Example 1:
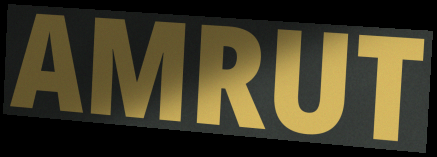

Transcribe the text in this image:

AMRUT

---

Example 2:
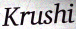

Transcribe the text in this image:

Krushi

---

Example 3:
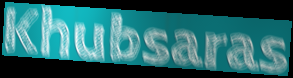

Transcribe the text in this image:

Khubsaras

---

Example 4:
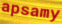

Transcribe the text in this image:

apsamy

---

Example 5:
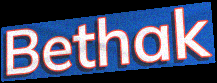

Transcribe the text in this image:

Bethak